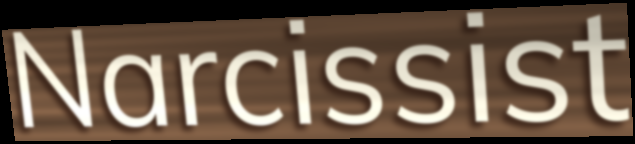
Narcissist